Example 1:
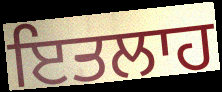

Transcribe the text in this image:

ਇਤਲਾਹ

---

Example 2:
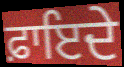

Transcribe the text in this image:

ਫ਼ਾਇਦੇ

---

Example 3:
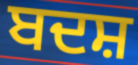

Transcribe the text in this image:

ਬਦਸ਼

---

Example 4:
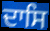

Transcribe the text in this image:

ਦਾਸਿ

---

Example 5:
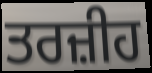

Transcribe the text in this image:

ਤਰਜ਼ੀਹ